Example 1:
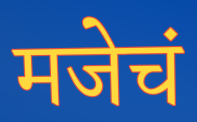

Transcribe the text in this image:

मजेचं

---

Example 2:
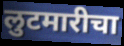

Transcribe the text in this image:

लुटमारीचा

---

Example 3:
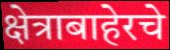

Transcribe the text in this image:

क्षेत्राबाहेरचे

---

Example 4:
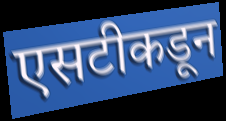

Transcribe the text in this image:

एसटीकडून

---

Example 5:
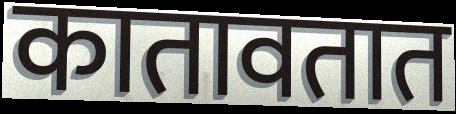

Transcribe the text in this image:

कातावतात